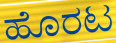
ಹೊರಟ